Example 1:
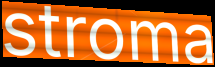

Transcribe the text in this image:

stroma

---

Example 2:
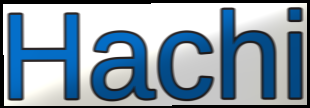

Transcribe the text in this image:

Hachi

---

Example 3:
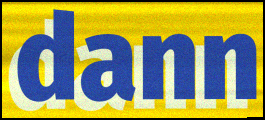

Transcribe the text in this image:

dann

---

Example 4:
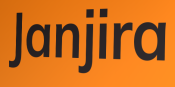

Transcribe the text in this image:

Janjira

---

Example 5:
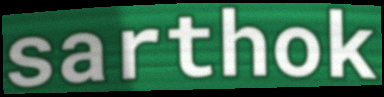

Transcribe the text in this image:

sarthok